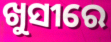
ଖୁସୀରେ